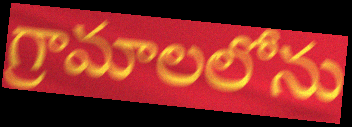
గ్రామాలలోను